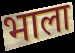
भाला